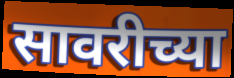
सावरीच्या